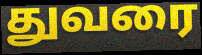
துவரை